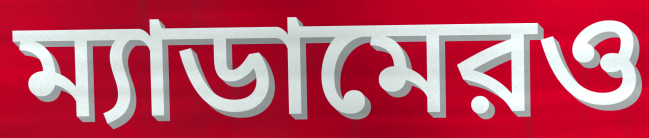
ম্যাডামেরও